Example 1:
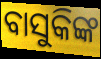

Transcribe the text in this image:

ବାସୁକିଙ୍କ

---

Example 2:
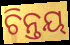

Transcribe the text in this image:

ଚିନ୍ତୟ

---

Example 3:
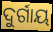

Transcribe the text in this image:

ଦୁର୍ଗାୟ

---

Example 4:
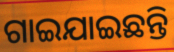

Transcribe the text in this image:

ଗାଇଯାଇଛନ୍ତି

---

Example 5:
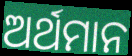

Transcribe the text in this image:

ଅର୍ଥମାନ